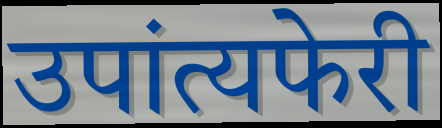
उपांत्यफेरी